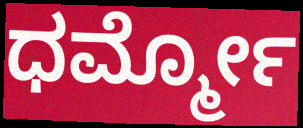
ಧರ್ಮ್ಮೋ